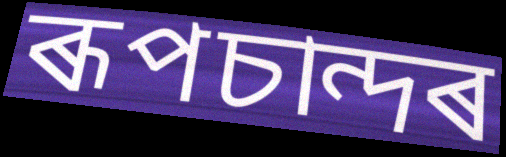
ৰূপচান্দৰ